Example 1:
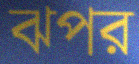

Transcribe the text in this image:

ঝপর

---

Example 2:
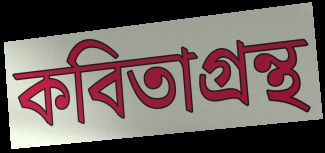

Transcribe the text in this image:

কবিতাগ্রন্থ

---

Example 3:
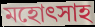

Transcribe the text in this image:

মহোৎসাহ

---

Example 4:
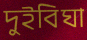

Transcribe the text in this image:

দুইবিঘা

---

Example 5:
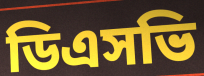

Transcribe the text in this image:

ডিএসভি